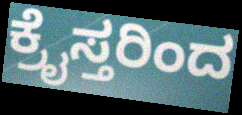
ಕ್ರೈಸ್ತರಿಂದ